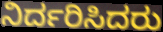
ನಿರ್ದರಿಸಿದರು